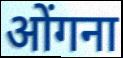
ओंगना